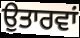
ਉਤਾਰਵਾਂ